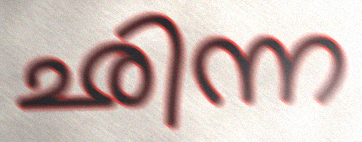
ഛിന്ന